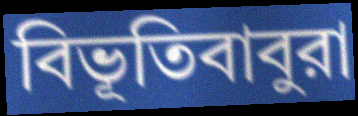
বিভূতিবাবুরা